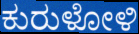
ಕುರುಳೋಳಿ